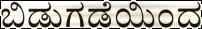
ಬಿಡುಗಡೆಯಿಂದ